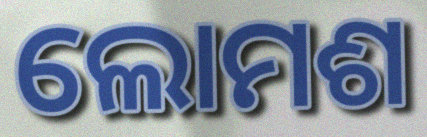
ଲୋମଶ